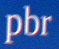
pbr